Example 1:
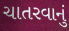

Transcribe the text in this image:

ચાતરવાનું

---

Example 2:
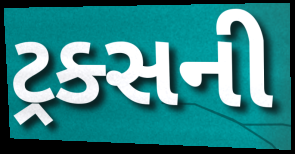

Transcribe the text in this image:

ટ્રક્સની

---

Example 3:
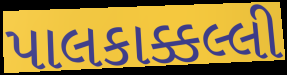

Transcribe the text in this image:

પાલકાક્કલ્લી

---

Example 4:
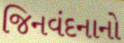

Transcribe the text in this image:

જિનવંદનાનો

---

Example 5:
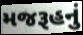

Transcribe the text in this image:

મજરૂહનું